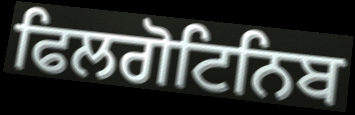
ਫਿਲਗੋਟਿਨਿਬ